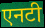
एनटी